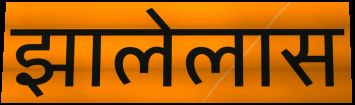
झालेलास